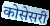
कोसेसरी